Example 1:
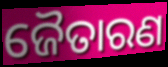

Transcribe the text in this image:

ଜୈତାରଣ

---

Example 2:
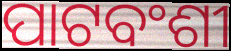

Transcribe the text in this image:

ପାଟବଂଶୀ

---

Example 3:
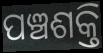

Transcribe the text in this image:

ପଞ୍ଚଶକ୍ତି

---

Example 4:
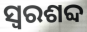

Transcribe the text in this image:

ସ୍ୱରଶବ୍ଦ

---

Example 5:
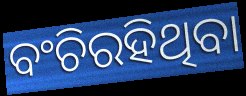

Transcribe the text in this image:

ବଂଚିରହିଥିବା